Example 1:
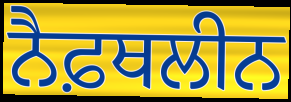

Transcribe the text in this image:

ਨੈਫ਼ਥਲੀਨ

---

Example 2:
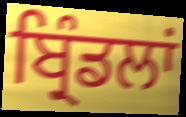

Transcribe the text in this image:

ਬ੍ਰਿੰਡਲਾਂ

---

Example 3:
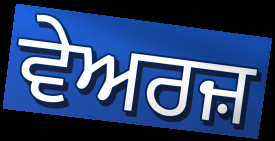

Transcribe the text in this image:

ਵੇਅਰਜ਼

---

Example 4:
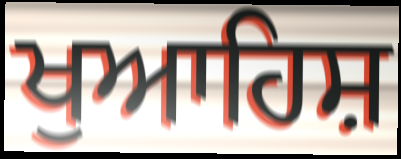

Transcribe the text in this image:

ਖੁਆਹਿਸ਼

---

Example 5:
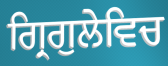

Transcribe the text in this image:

ਗ੍ਰਿਗੁਲੇਵਿਚ